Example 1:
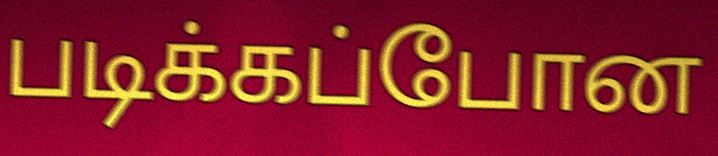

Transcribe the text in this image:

படிக்கப்போன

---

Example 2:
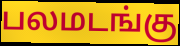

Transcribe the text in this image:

பலமடங்கு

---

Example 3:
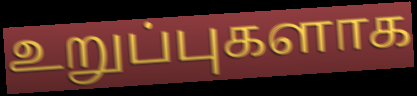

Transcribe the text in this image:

உறுப்புகளாக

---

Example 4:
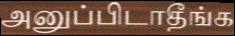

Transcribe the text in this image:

அனுப்பிடாதீங்க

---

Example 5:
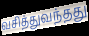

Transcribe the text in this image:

வசித்துவந்தது